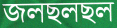
জলছলছল